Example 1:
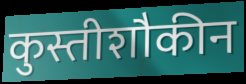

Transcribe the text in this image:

कुस्तीशौकीन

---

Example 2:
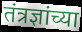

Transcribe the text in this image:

तंत्रज्ञांच्या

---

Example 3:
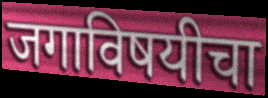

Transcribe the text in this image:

जगाविषयीचा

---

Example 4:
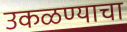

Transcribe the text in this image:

उकळण्याचा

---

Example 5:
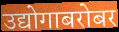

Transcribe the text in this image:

उद्योगाबरोबर